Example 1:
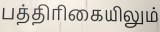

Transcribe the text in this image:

பத்திரிகையிலும்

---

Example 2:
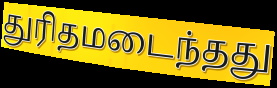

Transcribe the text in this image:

துரிதமடைந்தது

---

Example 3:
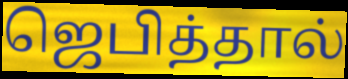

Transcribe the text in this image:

ஜெபித்தால்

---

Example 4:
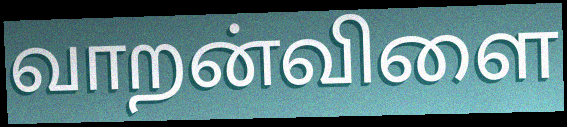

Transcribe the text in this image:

வாறன்விளை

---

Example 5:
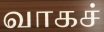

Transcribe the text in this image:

வாகச்